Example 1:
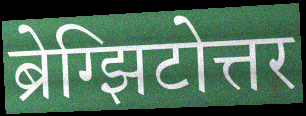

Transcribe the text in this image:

ब्रेग्झिटोत्तर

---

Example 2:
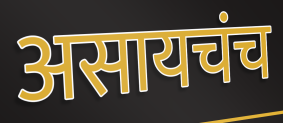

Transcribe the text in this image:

असायचंच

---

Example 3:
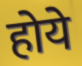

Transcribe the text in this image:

होये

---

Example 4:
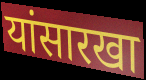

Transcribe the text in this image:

यांसारखा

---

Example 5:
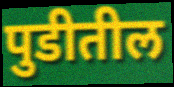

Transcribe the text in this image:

पुडीतील